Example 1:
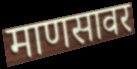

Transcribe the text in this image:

माणसावर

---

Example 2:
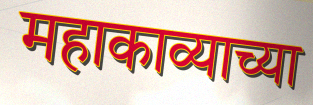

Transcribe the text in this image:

महाकाव्याच्या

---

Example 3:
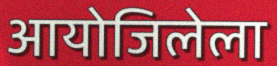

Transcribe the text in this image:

आयोजिलेला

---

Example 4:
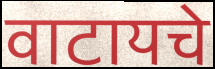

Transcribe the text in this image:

वाटायचे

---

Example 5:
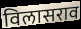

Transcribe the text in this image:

विलासराव